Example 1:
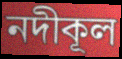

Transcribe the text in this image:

নদীকূল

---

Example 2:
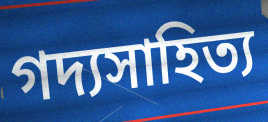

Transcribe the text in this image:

গদ্যসাহিত্য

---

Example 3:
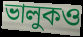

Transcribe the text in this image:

ভালুকও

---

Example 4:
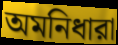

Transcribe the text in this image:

অমনিধারা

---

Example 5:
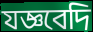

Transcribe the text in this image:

যজ্ঞবেদি